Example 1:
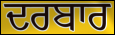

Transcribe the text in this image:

ਦਰਬਾਰ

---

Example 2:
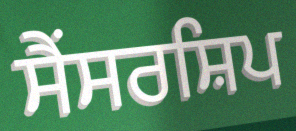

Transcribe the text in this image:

ਸੈਂਸਰਸ਼ਿਪ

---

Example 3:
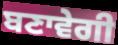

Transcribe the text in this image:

ਬਣਾਵੇਗੀ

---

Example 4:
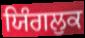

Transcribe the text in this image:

ਯਿੰਗਲੁਕ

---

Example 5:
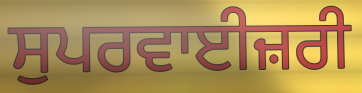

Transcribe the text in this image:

ਸੁਪਰਵਾਈਜ਼ਰੀ